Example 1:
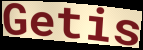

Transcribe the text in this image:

Getis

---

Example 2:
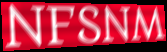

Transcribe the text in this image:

NFSNM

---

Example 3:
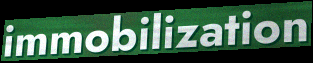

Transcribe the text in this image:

immobilization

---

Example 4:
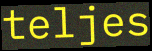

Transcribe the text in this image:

teljes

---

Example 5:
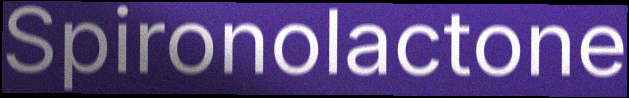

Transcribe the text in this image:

Spironolactone